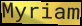
Myriam